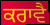
ਕਰਾਵੈ